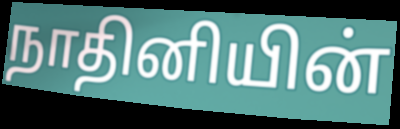
நாதினியின்